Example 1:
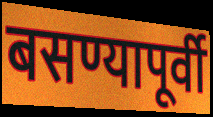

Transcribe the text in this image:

बसण्यापूर्वी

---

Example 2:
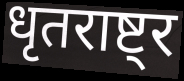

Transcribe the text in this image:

धृतराष्ट्र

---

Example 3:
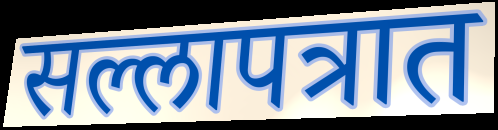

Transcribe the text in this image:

सल्लापत्रात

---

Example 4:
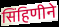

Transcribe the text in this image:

सिंहिणीने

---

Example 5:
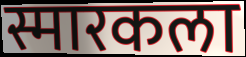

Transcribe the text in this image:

स्मारकला